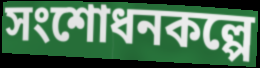
সংশোধনকল্পে